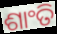
ଶାଂତି